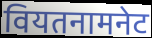
वियतनामनेट